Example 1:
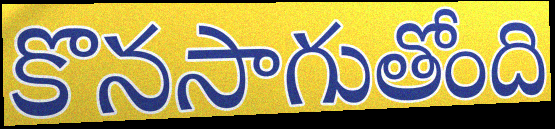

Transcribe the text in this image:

కొనసాగుతోంది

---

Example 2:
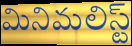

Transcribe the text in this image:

మినిమలిస్ట్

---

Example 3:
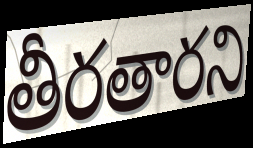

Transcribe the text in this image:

తీరతారని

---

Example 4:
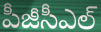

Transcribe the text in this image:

పీజీసీఎల్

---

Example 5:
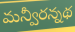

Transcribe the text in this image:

మన్వీరన్నథ